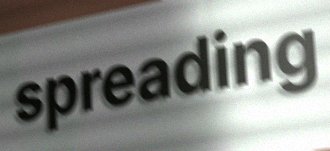
spreading